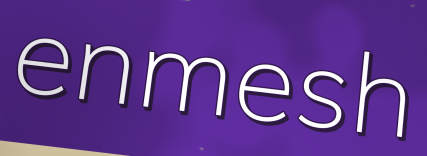
enmesh